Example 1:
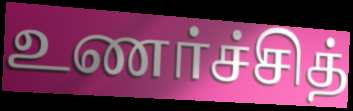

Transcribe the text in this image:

உணர்ச்சித்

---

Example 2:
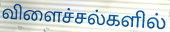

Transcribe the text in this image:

விளைச்சல்களில்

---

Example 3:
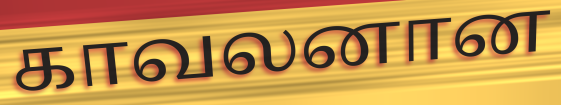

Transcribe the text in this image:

காவலனான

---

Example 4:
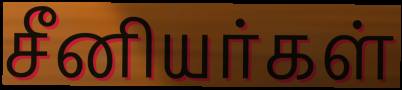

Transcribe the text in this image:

சீனியர்கள்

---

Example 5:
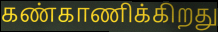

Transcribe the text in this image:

கண்காணிக்கிறது